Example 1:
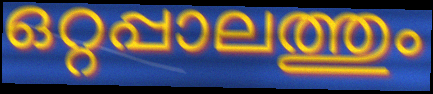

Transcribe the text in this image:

ഒറ്റപ്പാലത്തും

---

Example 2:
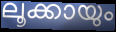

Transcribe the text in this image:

ലൂക്കായും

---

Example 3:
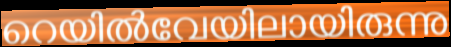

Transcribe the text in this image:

റെയിൽവേയിലായിരുന്നു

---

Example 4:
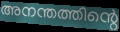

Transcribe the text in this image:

അനന്തത്തിന്റെ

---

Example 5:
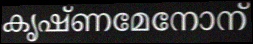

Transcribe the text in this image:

കൃഷ്ണമേനോന്